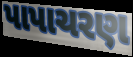
પાપાચરણ